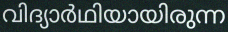
വിദ്യാർഥിയായിരുന്ന